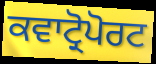
ਕਵਾਟ੍ਰੋਪੋਰਟ